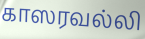
காஸரவல்லி